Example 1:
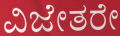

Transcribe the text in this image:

ವಿಜೇತರೇ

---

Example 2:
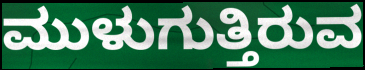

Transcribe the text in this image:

ಮುಳುಗುತ್ತಿರುವ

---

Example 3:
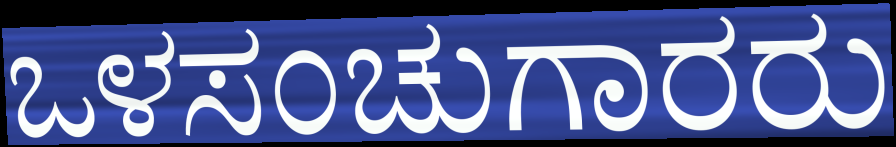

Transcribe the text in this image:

ಒಳಸಂಚುಗಾರರು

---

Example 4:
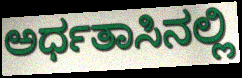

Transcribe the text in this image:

ಅರ್ಧತಾಸಿನಲ್ಲಿ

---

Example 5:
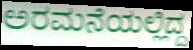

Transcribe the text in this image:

ಅರಮನೆಯಲ್ಲಿದ್ದ